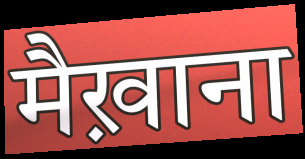
मैख़ाना